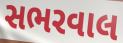
સભરવાલ